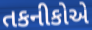
તકનીકોએ